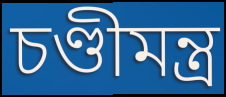
চণ্ডীমন্ত্র